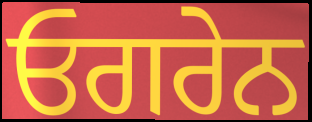
ਓਗਰੇਨ